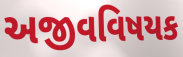
અજીવવિષયક